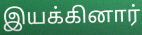
இயக்கினார்